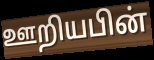
ஊறியபின்